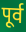
पूर्व